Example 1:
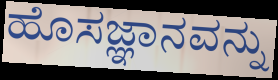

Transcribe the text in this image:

ಹೊಸಜ್ಞಾನವನ್ನು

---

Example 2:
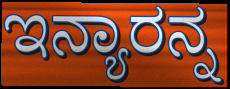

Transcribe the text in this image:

ಇನ್ಯಾರನ್ನ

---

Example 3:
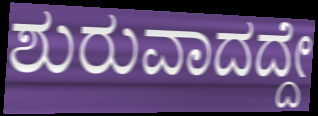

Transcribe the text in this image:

ಶುರುವಾದದ್ದೇ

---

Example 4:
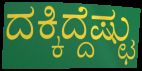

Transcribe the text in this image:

ದಕ್ಕಿದ್ದೆಷ್ಟು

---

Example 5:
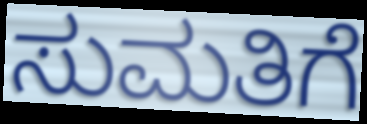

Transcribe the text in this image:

ಸುಮತಿಗೆ